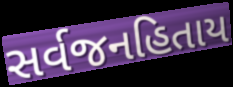
સર્વજનહિતાય